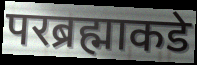
परब्रह्माकडे